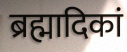
ब्रह्मादिकां